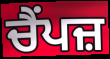
ਚੈਂਪਜ਼